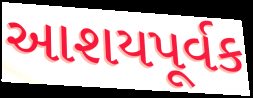
આશયપૂર્વક